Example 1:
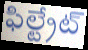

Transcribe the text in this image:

ఫిల్ట్రేట్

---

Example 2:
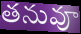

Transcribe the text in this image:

తనువూ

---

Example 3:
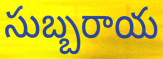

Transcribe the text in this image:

సుబ్బరాయ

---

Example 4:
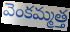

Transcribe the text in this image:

వెంకమ్మత్త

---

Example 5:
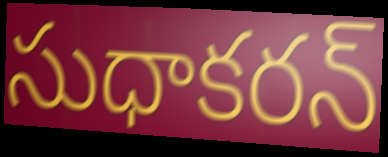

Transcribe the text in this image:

సుధాకరన్